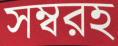
সম্বরহ